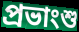
প্রভাংশু